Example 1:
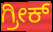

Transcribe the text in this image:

ಗ್ರೀಕ್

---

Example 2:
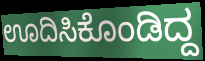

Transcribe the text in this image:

ಊದಿಸಿಕೊಂಡಿದ್ದ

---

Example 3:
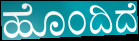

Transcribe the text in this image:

ಹೊಂದಿದೆ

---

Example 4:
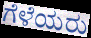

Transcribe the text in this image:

ಗೆಳೆಯರು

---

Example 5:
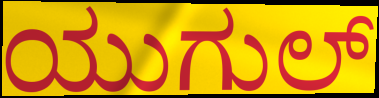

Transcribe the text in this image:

ಯುಗುಲ್